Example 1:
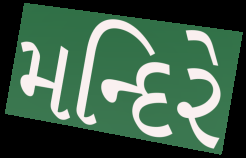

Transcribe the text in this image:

મન્દિરે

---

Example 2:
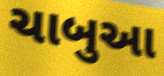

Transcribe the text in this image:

ચાબુઆ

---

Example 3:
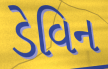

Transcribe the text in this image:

ડેવિન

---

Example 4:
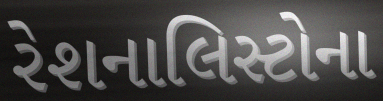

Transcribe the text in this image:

રેશનાલિસ્ટોના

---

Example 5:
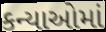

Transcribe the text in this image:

કન્યાઓમાં